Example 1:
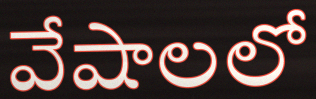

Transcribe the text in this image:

వేషాలలో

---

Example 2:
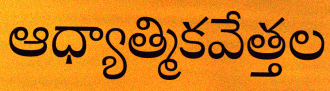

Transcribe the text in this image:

ఆధ్యాత్మికవేత్తల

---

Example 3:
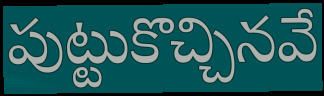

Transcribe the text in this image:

పుట్టుకొచ్చినవే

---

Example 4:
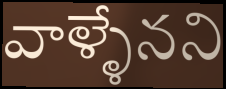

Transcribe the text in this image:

వాళ్ళేనని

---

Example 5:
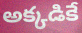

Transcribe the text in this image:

అక్కడికే